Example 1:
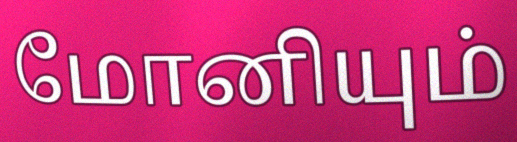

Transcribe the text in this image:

மோனியும்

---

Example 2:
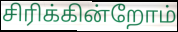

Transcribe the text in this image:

சிரிக்கின்றோம்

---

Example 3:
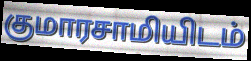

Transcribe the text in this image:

குமாரசாமியிடம்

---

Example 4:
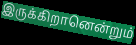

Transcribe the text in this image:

இருக்கிறானென்றும்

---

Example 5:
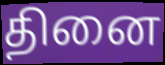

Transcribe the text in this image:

தினை